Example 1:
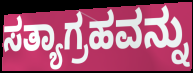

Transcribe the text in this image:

ಸತ್ಯಾಗ್ರಹವನ್ನು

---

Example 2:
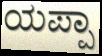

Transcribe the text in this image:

ಯಪ್ಪಾ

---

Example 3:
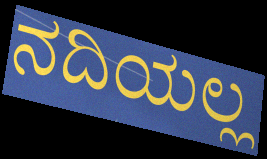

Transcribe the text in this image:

ನದಿಯಲ್ಲ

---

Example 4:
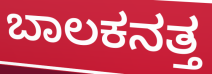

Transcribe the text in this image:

ಬಾಲಕನತ್ತ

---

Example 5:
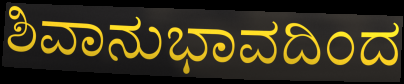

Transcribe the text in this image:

ಶಿವಾನುಭಾವದಿಂದ